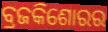
ବ୍ରଜକିଶୋରର